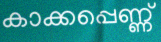
കാക്കപ്പെണ്ണ്